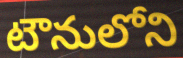
టౌనులోని